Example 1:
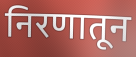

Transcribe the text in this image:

निरणातून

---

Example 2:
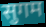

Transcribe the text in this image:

सुगम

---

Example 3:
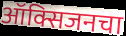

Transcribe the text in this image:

ऑक्सिजनचा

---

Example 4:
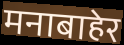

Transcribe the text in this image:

मनाबाहेर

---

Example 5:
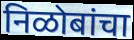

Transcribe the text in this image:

निळोबांचा